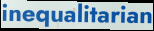
inequalitarian